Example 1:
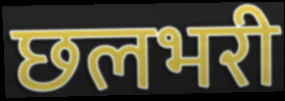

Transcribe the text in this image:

छलभरी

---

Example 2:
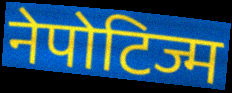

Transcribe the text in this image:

नेपोटिज्‍म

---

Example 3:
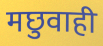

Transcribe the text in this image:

मछुवाही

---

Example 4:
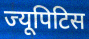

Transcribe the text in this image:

ज्यूपिटिस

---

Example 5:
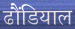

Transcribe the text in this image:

ढौंडियाल